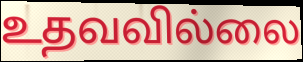
உதவவில்லை